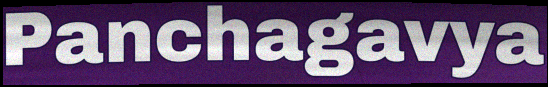
Panchagavya